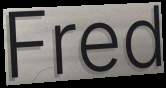
Fred